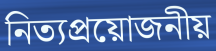
নিত্যপ্রয়োজনীয়